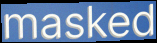
masked